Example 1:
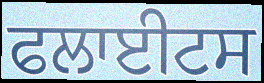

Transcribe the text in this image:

ਫਲਾਈਟਸ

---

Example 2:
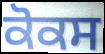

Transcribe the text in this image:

ਕੋਕਸ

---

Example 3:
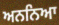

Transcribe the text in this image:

ਅਨਨਿਆ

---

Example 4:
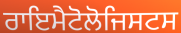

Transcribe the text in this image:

ਰਾਇਮੈਟੋਲੋਜਿਸਟਸ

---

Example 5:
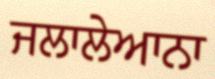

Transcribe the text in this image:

ਜਲਾਲੇਆਨਾ